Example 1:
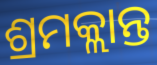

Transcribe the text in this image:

ଶ୍ରମକ୍ଲାନ୍ତ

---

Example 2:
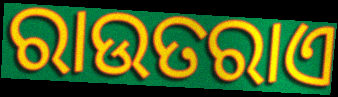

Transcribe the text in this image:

ରାଉତରାଏ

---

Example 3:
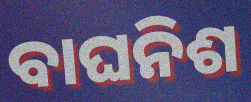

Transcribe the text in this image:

ବାଘନିଶ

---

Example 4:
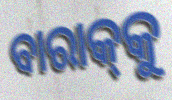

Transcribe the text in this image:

ବାରାକ୍‌କୁ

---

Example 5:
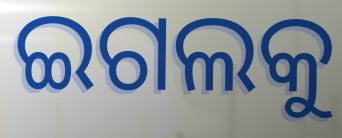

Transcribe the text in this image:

ଇଗଲକୁ